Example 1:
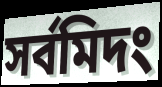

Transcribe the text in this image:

সর্বমিদং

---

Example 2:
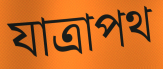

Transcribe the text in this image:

যাত্রাপথ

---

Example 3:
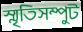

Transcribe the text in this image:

স্মৃতিসম্পুট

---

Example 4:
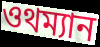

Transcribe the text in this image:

ওথম্যান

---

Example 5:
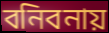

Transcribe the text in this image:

বনিবনায়